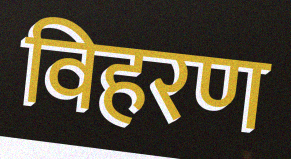
विहरण